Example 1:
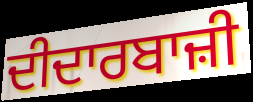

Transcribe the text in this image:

ਦੀਦਾਰਬਾਜ਼ੀ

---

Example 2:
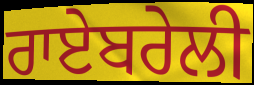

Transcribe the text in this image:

ਰਾਏਬਰੇਲੀ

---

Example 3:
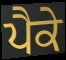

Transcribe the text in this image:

ਪੈਕੇ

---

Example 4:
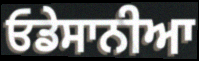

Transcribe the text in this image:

ਓਡੇਸਾਨੀਆ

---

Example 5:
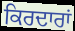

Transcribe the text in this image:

ਕਿਰਦਾਰਾਂ